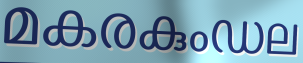
മകരകുംഡല